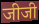
जीजी